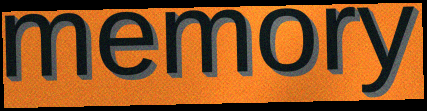
memory